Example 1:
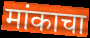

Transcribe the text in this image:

मांकाचा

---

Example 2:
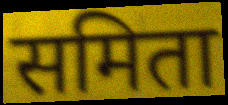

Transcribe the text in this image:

समिता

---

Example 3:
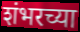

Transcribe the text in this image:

शंभरच्या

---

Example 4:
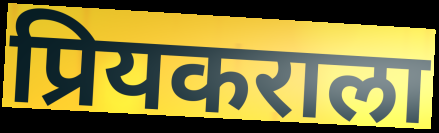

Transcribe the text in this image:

प्रियकराला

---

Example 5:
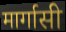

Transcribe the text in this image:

मार्गासी